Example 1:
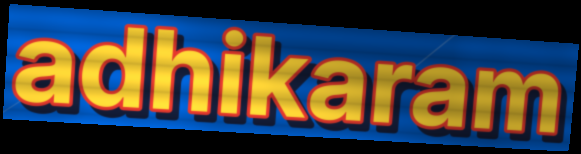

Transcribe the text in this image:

adhikaram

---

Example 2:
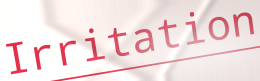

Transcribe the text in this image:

Irritation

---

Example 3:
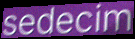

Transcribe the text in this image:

sedecim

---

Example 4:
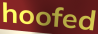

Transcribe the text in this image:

hoofed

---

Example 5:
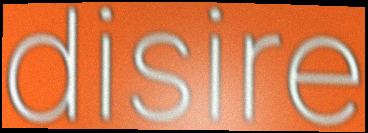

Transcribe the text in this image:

disire